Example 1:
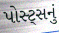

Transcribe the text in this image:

પોસ્ટ્સનું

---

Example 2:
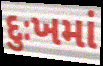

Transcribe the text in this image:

દુઃખમાં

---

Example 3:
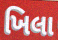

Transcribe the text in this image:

ખિલા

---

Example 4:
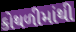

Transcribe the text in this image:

કોથળીમાંથી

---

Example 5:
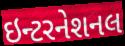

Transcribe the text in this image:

ઇન્ટરનેશનલ